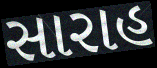
સારાહ